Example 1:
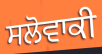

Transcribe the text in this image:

ਸਲੋਵਾਕੀ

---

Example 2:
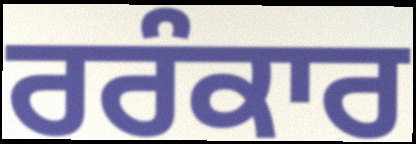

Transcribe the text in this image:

ਰਰੰਕਾਰ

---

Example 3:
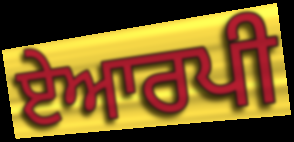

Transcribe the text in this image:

ਏਆਰਪੀ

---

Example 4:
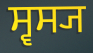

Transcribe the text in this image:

ਸ੍ਵਸ੍ਯ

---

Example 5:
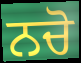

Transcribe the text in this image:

ਨਚੋ